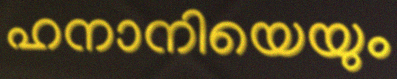
ഹനാനിയെയും